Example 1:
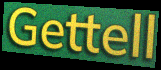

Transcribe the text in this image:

Gettell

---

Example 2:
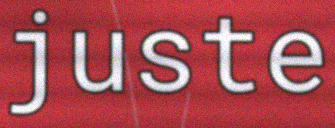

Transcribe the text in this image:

juste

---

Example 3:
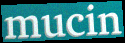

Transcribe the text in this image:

mucin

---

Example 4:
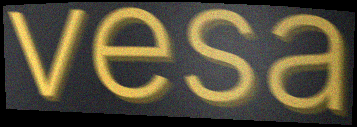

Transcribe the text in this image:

vesa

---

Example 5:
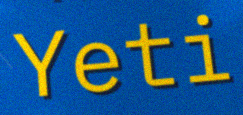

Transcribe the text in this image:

Yeti